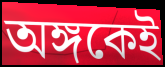
অঙ্গকেই